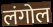
लंगोल